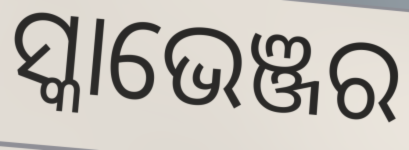
ସ୍କାଭେଞ୍ଜର